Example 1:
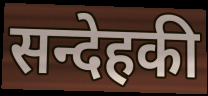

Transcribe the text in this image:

सन्देहकी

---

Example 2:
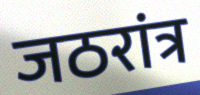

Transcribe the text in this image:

जठरांत्र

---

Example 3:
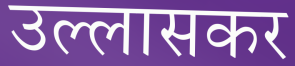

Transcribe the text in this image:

उल्लासकर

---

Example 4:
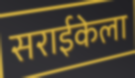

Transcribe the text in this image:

सराईकेला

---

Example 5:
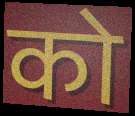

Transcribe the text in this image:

को